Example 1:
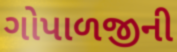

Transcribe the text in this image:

ગોપાળજીની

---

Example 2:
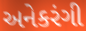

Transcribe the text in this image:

અનેકરંગી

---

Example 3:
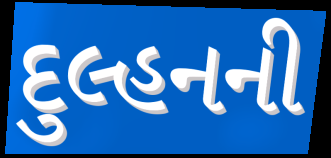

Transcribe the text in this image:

દુલ્હનની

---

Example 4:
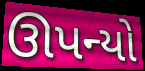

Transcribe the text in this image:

ઊપન્યો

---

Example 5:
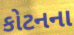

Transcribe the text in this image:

કોટનના